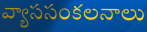
వ్యాససంకలనాలు